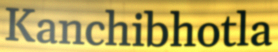
Kanchibhotla